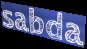
sabda